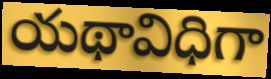
యథావిధిగా